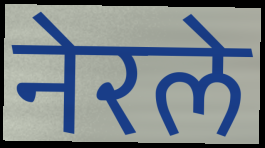
नेरले